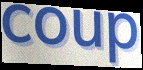
coup